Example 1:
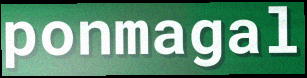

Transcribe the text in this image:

ponmagal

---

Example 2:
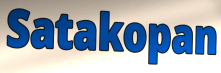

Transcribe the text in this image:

Satakopan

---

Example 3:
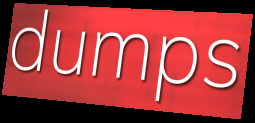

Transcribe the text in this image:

dumps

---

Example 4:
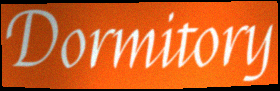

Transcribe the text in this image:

Dormitory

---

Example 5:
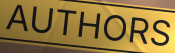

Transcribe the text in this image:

AUTHORS